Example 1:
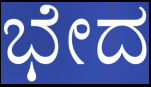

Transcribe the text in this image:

ಭೇದ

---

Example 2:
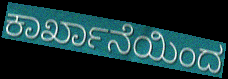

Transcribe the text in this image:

ಕಾರ್ಖಾನೆಯಿಂದ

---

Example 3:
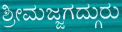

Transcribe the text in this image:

ಶ್ರೀಮಜ್ಜಗದ್ಗುರು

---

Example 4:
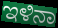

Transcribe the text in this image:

ಇಳಿನಾ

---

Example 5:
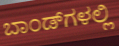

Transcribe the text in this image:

ಬಾಂಡ್‌ಗಳಲ್ಲಿ